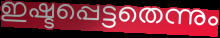
ഇഷ്ടപ്പെട്ടതെന്നും